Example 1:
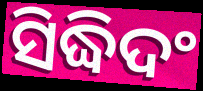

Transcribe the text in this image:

ସିଦ୍ଧିଦଂ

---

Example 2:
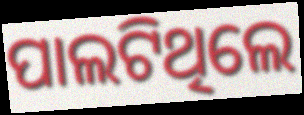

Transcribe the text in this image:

ପାଲଟିଥିଲେ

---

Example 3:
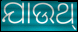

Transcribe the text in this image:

ଯାଉଥ୍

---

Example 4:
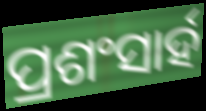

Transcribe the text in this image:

ପ୍ରଶଂସାର୍ହ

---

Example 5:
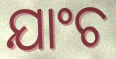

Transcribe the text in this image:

ଯାଂଚ